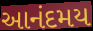
આનંદમય